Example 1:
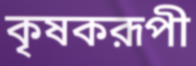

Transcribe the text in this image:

কৃষকরূপী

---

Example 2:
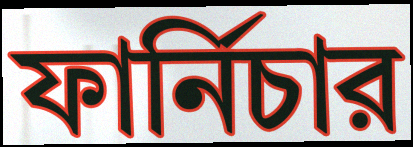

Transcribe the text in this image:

ফার্নিচার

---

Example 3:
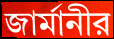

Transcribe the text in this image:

জার্মানীর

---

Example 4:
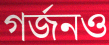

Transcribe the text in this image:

গর্জনও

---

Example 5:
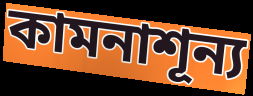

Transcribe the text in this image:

কামনাশূন্য